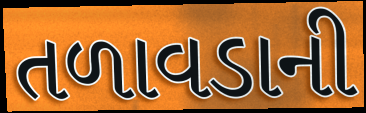
તળાવડાની